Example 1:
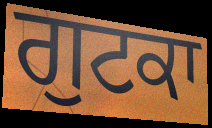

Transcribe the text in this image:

ਗੁਟਕਾ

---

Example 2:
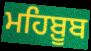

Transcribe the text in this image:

ਮਹਿਬ਼ੂਬ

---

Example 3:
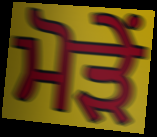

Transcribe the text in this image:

ਮੋੜੇਂ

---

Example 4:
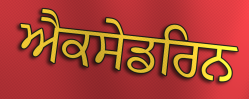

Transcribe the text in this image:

ਐਕਸੇਡਰਿਨ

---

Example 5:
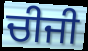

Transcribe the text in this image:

ਚੀਜੀ